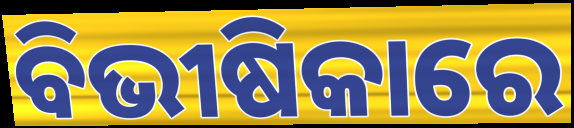
ବିଭୀଷିକାରେ